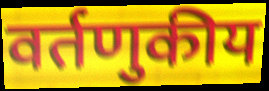
वर्तणुकीय